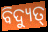
ବିଦ୍ୟୁତ୍